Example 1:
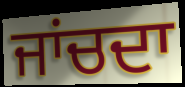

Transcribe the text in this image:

ਜਾਂਚਦਾ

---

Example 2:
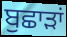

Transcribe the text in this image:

ਬੁਛਾੜਾਂ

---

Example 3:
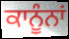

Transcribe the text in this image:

ਕਾਨੂੰਨਾਂ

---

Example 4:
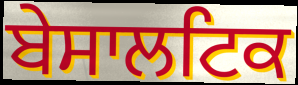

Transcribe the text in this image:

ਬੇਸਾਲਟਿਕ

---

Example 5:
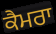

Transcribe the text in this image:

ਕੈਮਰਾ